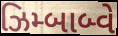
ઝિમ્બાબ્વે